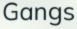
Gangs